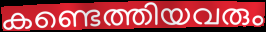
കണ്ടെത്തിയവരും